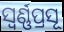
ସ୍ୱର୍ଣ୍ଣପ୍ରସୂ